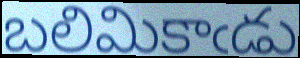
బలిమికాఁడు